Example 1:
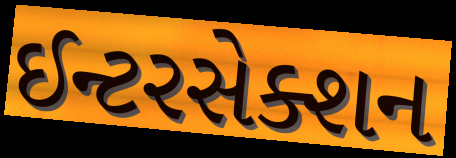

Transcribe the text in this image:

ઈન્ટરસેક્શન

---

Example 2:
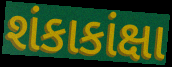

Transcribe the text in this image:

શંકાકાંક્ષા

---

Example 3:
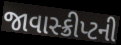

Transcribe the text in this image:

જાવાસ્ક્રીપ્ટની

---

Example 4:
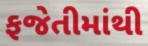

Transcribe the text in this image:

ફજેતીમાંથી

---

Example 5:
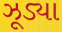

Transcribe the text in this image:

ઝૂડ્યા